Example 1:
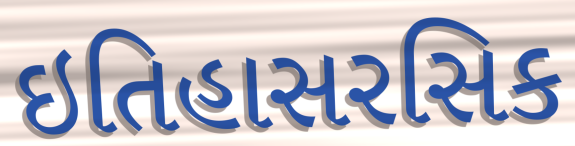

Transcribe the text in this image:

ઇતિહાસરસિક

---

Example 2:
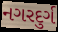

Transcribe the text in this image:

નગરદુર્ગ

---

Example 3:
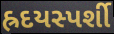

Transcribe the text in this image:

હ્રદયસ્પર્શી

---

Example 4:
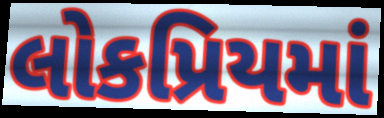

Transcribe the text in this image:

લોકપ્રિયમાં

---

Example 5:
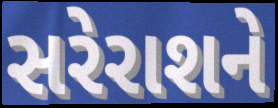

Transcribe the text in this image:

સરેરાશને